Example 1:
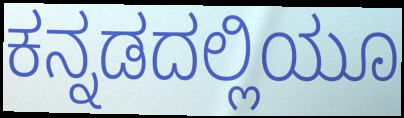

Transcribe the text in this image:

ಕನ್ನಡದಲ್ಲಿಯೂ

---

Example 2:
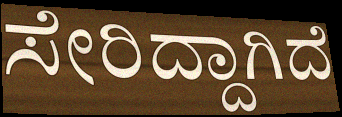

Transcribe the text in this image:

ಸೇರಿದ್ದಾಗಿದೆ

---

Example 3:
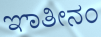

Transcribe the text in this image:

ಞಾತೀನಂ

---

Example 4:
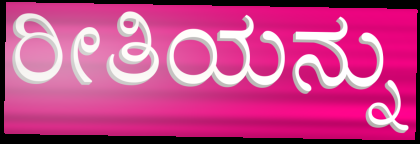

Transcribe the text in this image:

ರೀತಿಯನ್ನು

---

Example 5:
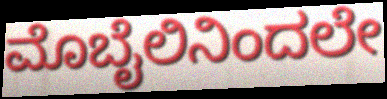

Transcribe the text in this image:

ಮೊಬೈಲಿನಿಂದಲೇ